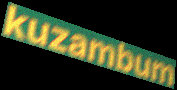
kuzambum